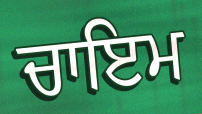
ਚਾਇਮ